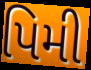
પિમી